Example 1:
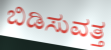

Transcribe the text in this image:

ಬಿಡಿಸುವತ್ತ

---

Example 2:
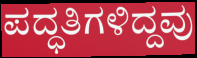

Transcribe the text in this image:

ಪದ್ಧತಿಗಳಿದ್ದವು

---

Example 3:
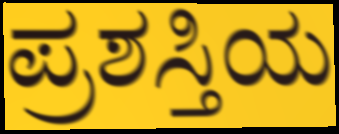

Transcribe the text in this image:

ಪ್ರಶಸ್ತಿಯ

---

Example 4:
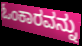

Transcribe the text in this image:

ಓಂಕಾರವನ್ನು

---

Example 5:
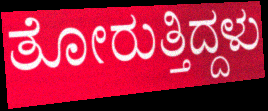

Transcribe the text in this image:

ತೋರುತ್ತಿದ್ದಳು